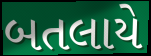
બતલાયે